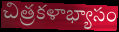
చిత్రకళాభ్యాసం